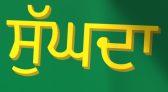
ਸੁੱਘਦਾ